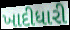
ખાદીધારી